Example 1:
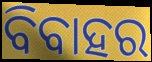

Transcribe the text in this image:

ବିବାହର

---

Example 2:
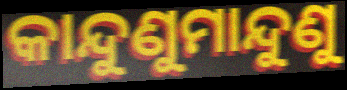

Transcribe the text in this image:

କାନ୍ଦୁଣୁମାନ୍ଦୁଣୁ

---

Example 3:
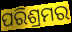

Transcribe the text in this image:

ପରିଶ୍ରମର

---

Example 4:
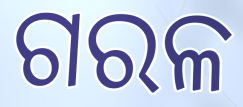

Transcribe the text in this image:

ଗରଳ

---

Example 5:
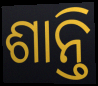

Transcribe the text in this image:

ଶାନ୍ତି